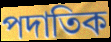
পদাতিক